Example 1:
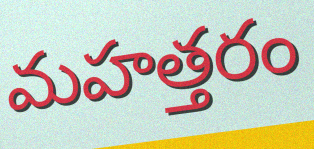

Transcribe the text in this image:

మహత్తరం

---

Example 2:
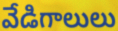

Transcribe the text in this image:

వేడిగాలులు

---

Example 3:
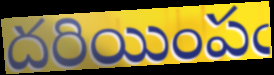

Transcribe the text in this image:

దరియింపఁ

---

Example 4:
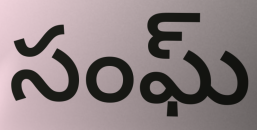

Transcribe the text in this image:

సంఘ్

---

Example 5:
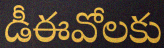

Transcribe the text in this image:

డీఈవోలకు